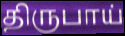
திருபாய்